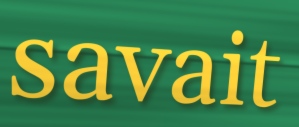
savait